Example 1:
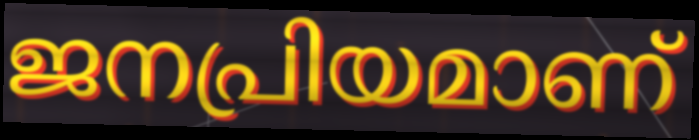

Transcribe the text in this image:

ജനപ്രിയമാണ്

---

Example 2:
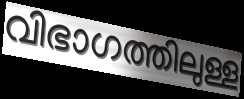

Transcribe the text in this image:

വിഭാഗത്തിലുള്ള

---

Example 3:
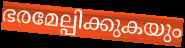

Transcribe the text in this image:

ഭരമേല്പിക്കുകയും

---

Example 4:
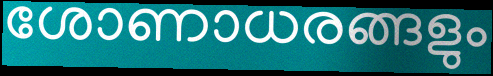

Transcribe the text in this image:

ശോണാധരങ്ങളും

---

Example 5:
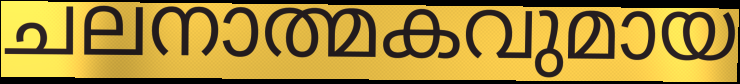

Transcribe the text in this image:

ചലനാത്മകവുമായ